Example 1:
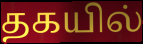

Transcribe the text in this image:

தகயில்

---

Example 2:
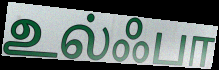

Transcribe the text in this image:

உல்ஃபா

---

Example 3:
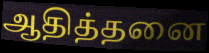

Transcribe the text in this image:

ஆதித்தனை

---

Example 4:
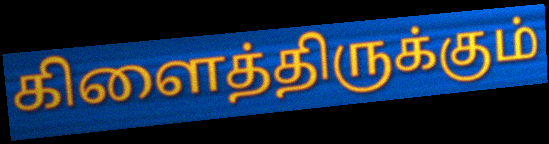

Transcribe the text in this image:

கிளைத்திருக்கும்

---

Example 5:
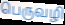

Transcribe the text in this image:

பெருவழி